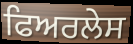
ਫਿਅਰਲੇਸ